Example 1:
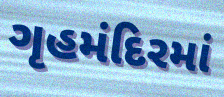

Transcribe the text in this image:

ગૃહમંદિરમાં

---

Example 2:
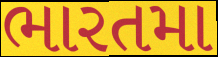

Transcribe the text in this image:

ભારતમા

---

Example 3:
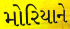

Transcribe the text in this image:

મોરિયાને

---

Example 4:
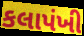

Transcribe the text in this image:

કલાપંખી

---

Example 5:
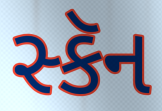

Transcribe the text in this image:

સ્કૅન